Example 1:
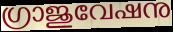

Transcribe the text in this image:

ഗ്രാജുവേഷനു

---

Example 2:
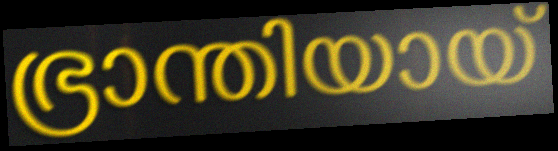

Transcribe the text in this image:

ഭ്രാന്തിയായ്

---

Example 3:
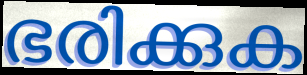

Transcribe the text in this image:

ഭരിക്കുക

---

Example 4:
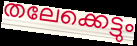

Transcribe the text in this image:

തലേക്കെട്ടും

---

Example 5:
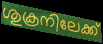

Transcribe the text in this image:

ശുക്രനിലേക്ക്